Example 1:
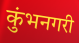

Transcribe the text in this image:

कुंभनगरी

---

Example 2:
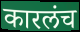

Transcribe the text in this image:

कारलंच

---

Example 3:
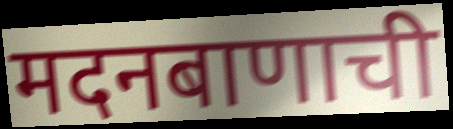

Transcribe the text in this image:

मदनबाणाची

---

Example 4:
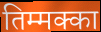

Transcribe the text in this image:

तिम्मक्का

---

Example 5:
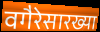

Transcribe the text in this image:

वगैरेसारख्या